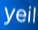
yeil